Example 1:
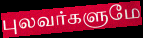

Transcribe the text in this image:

புலவர்களுமே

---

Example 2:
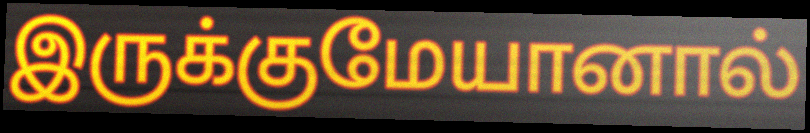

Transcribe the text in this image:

இருக்குமேயானால்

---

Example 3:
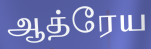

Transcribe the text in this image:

ஆத்ரேய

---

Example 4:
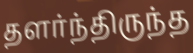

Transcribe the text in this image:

தளர்ந்திருந்த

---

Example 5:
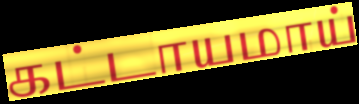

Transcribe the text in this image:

கட்டாயமாய்